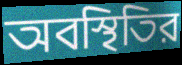
অবস্থিতির